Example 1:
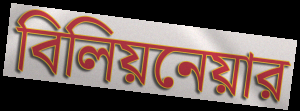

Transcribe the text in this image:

বিলিয়নেয়ার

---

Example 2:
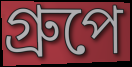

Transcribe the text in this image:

গ্রুপে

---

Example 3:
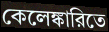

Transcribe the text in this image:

কেলেঙ্কারিতে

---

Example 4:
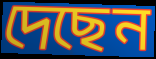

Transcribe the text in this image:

দেছেন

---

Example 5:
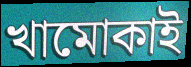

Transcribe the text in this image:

খামোকাই